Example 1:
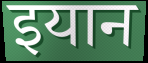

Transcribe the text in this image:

इयान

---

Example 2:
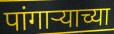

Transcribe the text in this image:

पांगार्‍याच्या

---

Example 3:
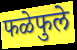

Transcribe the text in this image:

फळेफुले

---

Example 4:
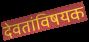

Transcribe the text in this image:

देवतांविषयक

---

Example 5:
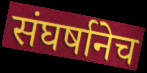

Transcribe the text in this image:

संघर्षानेच